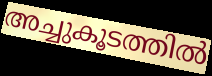
അച്ചുകൂടത്തിൽ